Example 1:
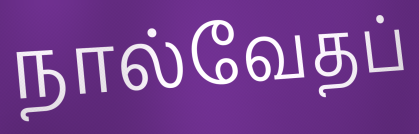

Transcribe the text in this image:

நால்வேதப்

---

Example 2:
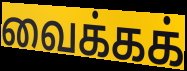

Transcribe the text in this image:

வைக்கக்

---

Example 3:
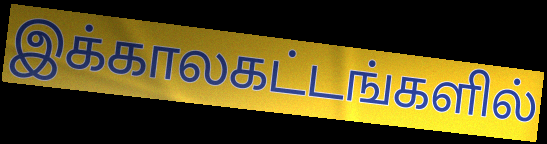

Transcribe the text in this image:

இக்காலகட்டங்களில்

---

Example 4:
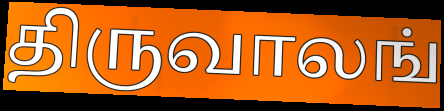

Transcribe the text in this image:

திருவாலங்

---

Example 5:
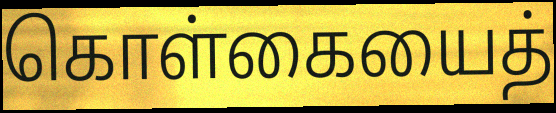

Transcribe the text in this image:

கொள்கையைத்